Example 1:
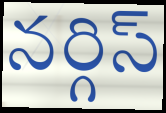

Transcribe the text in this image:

నర్గిస్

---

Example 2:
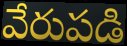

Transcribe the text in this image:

వేరుపడి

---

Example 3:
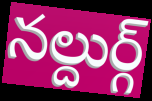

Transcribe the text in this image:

నల్దుర్గ్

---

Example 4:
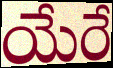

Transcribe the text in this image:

యేరే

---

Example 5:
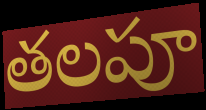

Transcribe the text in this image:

తలపూ